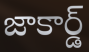
జాకార్డ్